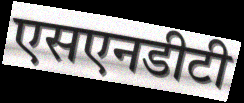
एसएनडीटी